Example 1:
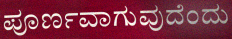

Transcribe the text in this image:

ಪೂರ್ಣವಾಗುವುದೆಂದು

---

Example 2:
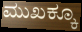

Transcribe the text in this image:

ಮುಖಕ್ಕೂ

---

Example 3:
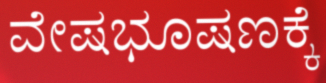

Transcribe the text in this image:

ವೇಷಭೂಷಣಕ್ಕೆ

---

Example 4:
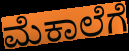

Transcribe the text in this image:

ಮೆಕಾಲೆಗೆ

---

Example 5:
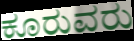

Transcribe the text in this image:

ಕೂರುವರು